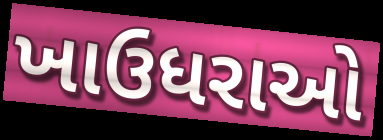
ખાઉધરાઓ